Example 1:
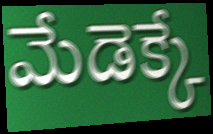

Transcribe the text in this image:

మేడెక్కే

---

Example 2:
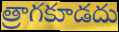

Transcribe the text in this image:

త్రాగకూడదు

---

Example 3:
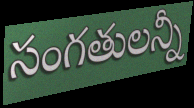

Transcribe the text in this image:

సంగతులన్నీ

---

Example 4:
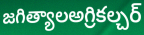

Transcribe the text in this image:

జగిత్యాలఅగ్రికల్చర్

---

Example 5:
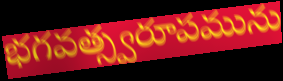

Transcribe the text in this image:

భగవత్స్వరూపమును